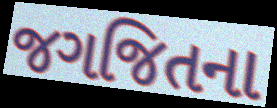
જગજિતના